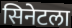
सिनेटला